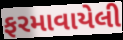
ફરમાવાયેલી